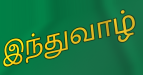
இந்துவாழ்